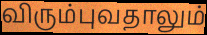
விரும்புவதாலும்